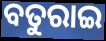
ବତୁରାଇ